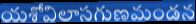
యశోవిలాసగుణమండన